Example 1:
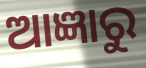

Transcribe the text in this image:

ଆଜ୍ଞାରୁ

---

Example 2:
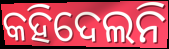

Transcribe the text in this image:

କହିଦେଲନି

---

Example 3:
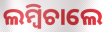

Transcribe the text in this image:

ଲମ୍ବିଚାଲେ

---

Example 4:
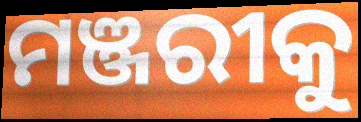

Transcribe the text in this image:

ମଞ୍ଜରୀକୁ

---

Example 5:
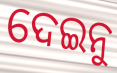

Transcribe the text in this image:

ଦେଇନୁ